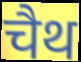
चैथ